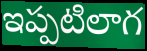
ఇప్పటిలాగ